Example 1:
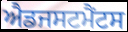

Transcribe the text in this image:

ਐਡਜਸਟਮੈਂਟਸ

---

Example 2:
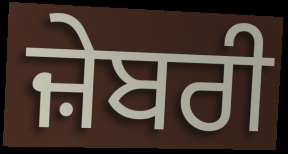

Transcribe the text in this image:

ਜ਼ੇਬਰੀ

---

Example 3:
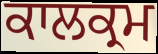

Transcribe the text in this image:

ਕਾਲਕ੍ਰਮ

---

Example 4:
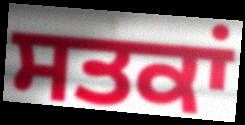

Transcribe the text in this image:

ਸਤਕਾਂ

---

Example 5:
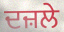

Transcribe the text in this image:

ਦਜ਼ਲੇ